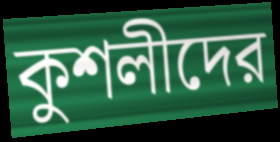
কুশলীদের